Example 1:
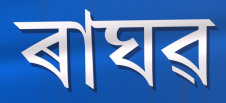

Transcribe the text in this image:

ৰাঘৱ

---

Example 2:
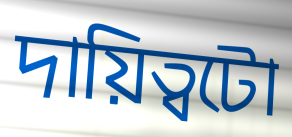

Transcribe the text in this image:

দায়িত্বটো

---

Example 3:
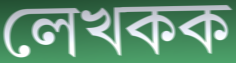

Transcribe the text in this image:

লেখকক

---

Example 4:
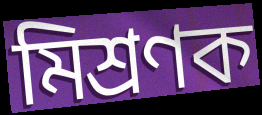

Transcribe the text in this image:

মিশ্ৰণক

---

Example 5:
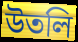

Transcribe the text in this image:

উতলি